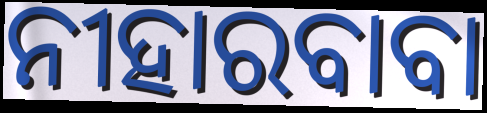
ନୀହାରବାବା